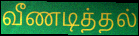
வீணடித்தல்